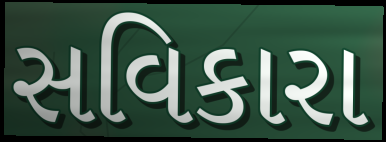
સવિકારા